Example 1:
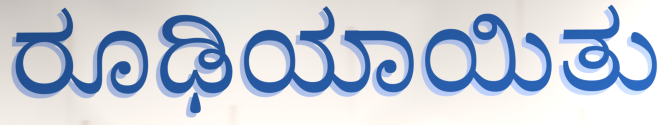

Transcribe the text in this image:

ರೂಢಿಯಾಯಿತು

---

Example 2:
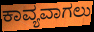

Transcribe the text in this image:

ಕಾವ್ಯವಾಗಲು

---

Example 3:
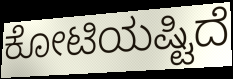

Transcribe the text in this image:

ಕೋಟಿಯಷ್ಟಿದೆ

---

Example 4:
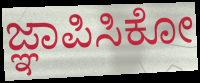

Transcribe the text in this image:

ಜ್ಞಾಪಿಸಿಕೋ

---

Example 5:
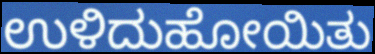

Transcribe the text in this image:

ಉಳಿದುಹೋಯಿತು